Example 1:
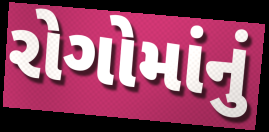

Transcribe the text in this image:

રોગોમાંનું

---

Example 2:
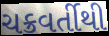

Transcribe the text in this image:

ચક્રવર્તીથી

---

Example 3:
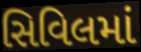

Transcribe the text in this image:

સિવિલમાં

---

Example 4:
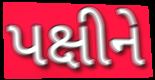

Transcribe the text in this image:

પક્ષીને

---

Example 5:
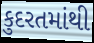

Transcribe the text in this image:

કુદરતમાંથી